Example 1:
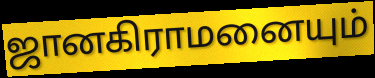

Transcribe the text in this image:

ஜானகிராமனையும்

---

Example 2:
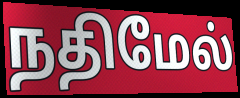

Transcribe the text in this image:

நதிமேல்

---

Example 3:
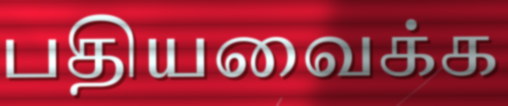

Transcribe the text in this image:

பதியவைக்க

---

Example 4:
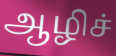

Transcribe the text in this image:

ஆழிச்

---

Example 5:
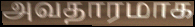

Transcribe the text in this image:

அவதாரமாக